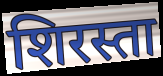
शिरस्ता